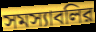
সমস্যাবলির